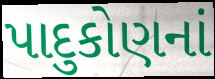
પાદુકોણનાં